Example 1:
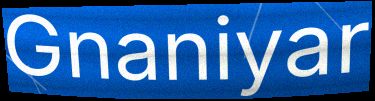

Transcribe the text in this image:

Gnaniyar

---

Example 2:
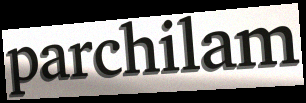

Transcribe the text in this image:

parchilam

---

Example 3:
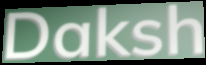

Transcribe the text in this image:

Daksh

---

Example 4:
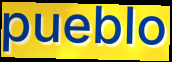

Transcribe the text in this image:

pueblo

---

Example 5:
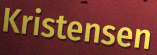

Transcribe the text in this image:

Kristensen